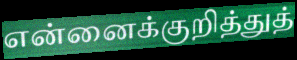
என்னைக்குறித்துத்